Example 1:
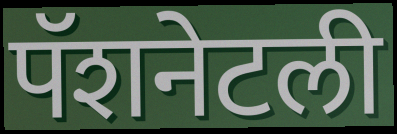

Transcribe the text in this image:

पॅशनेटली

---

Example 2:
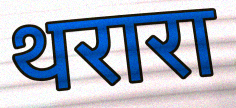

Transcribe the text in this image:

थरारा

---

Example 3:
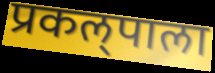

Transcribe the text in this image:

प्रकल्पाला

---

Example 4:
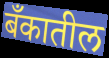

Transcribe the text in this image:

बँकातील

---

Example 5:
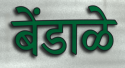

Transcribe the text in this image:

बेंडाळे